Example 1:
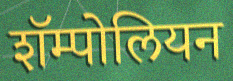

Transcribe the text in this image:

शॅम्पोलियन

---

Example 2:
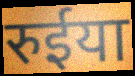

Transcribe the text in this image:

रुईया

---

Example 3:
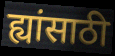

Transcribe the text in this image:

ह्यांसाठी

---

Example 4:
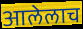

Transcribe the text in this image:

आलेलाच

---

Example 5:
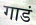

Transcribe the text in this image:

गाडं